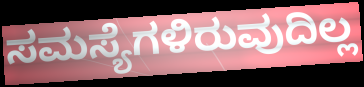
ಸಮಸ್ಯೆಗಳಿರುವುದಿಲ್ಲ